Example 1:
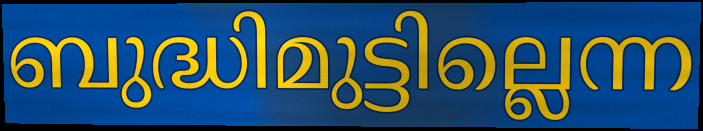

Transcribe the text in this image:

ബുദ്ധിമുട്ടില്ലെന്ന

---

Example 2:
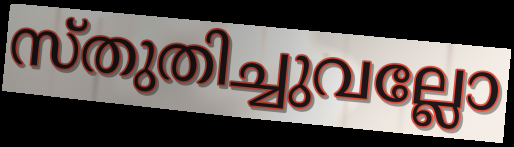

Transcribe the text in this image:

സ്തുതിച്ചുവല്ലോ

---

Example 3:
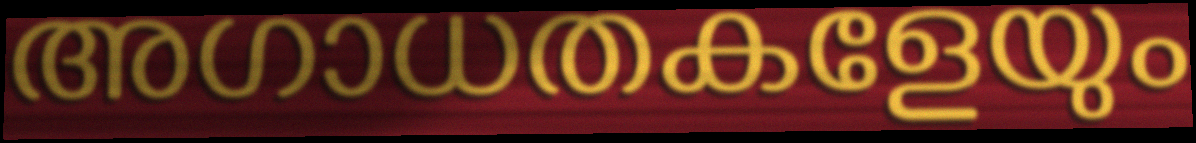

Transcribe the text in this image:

അഗാധതകളേയും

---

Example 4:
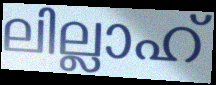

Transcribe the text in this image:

ലില്ലാഹ്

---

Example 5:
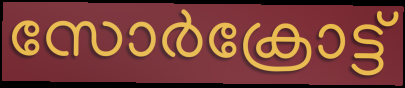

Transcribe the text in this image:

സോർക്രോട്ട്